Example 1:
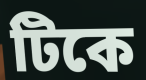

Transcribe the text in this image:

টিকে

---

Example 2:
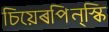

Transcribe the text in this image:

চিয়েৰপিন্‌স্কি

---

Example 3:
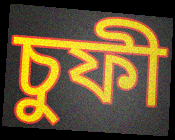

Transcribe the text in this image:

চুফী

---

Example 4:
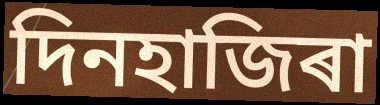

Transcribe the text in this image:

দিনহাজিৰা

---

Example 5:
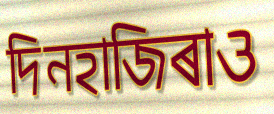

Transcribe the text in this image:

দিনহাজিৰাও